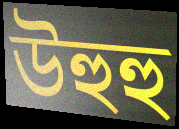
উহুহু